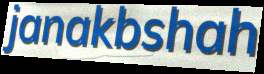
janakbshah